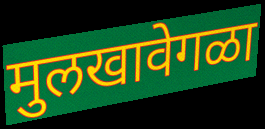
मुलखावेगळा